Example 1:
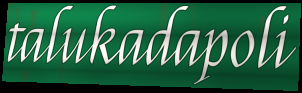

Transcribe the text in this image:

talukadapoli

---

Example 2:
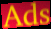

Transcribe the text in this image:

Ads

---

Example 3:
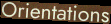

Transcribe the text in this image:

Orientations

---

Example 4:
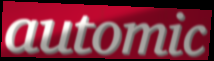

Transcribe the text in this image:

automic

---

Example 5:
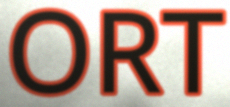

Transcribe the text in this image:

ORT